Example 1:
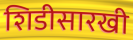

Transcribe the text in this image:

शिडीसारखी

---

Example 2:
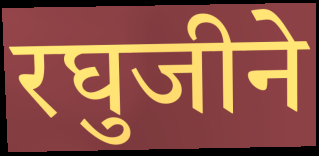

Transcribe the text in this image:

रघुजीने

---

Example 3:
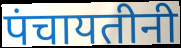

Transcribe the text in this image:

पंचायतीनी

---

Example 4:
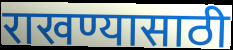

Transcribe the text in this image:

राखण्यासाठी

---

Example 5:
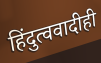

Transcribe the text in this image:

हिंदुत्ववादीही